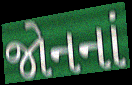
જોનનાં